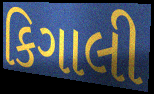
કિગાલી